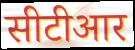
सीटीआर